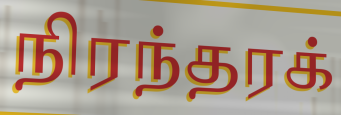
நிரந்தரக்